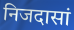
निजदासां